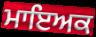
ਮਾਇਅਕ